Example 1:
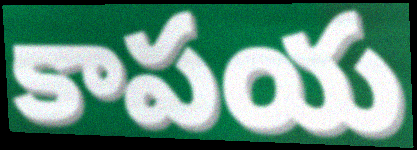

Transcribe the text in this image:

కాపయ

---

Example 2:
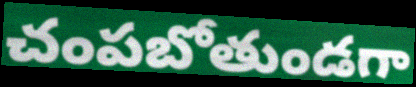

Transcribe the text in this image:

చంపబోతుండగా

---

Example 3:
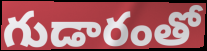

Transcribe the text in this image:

గుడారంతో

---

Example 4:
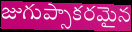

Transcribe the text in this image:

జుగుప్సాకరమైన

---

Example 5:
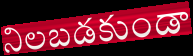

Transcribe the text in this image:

నిలబడకుండా